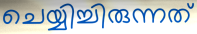
ചെയ്യിച്ചിരുന്നത്